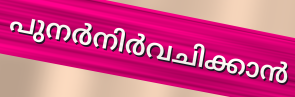
പുനർനിർവചിക്കാൻ